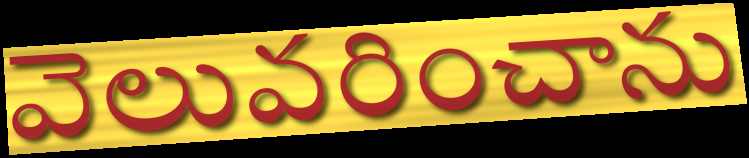
వెలువరించాను